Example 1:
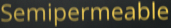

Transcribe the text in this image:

Semipermeable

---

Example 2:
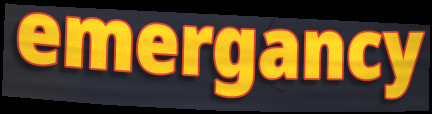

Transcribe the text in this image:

emergancy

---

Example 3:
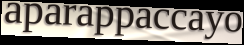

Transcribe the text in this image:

aparappaccayo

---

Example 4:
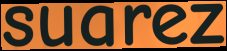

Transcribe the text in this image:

suarez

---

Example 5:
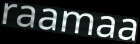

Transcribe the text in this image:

raamaa